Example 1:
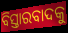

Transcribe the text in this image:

ବିସ୍ତାରବାଦକୁ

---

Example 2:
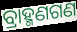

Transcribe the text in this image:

ବ୍ରାହ୍ମଣଗଣ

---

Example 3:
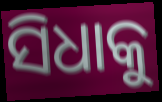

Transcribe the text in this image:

ସିଧାକୁ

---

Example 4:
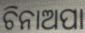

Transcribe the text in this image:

ଚିନାଅପା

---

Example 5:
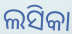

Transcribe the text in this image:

ଲସିକା